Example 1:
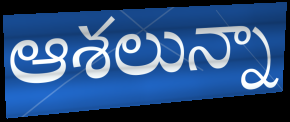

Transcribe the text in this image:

ఆశలున్నా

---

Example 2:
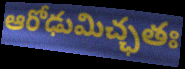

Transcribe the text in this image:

ఆరోఢుమిచ్ఛతః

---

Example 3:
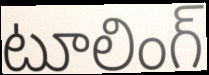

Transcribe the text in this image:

టూలింగ్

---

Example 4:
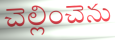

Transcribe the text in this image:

చెల్లించెను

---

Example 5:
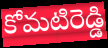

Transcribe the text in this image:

కోమటిరెడ్డి